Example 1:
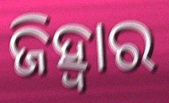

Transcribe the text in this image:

ଜିହ୍ଵାର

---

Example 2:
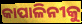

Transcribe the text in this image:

କାପାଳିନୀକୁ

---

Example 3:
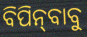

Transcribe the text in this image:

ବିପିନ୍‍ବାବୁ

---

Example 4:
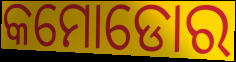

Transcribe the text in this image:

କମୋଡୋର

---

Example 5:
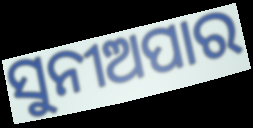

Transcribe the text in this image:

ସୁନୀଅପାର